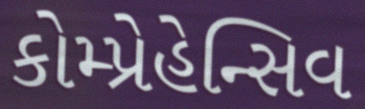
કોમ્પ્રેહેન્સિવ